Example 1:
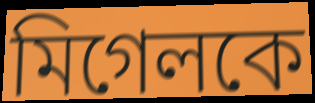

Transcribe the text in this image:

মিগেলকে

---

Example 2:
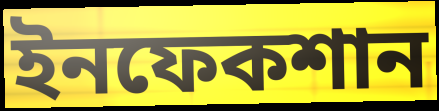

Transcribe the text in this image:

ইনফেকশান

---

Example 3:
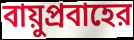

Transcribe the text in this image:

বায়ুপ্রবাহের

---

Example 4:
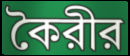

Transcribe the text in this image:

কৈরীর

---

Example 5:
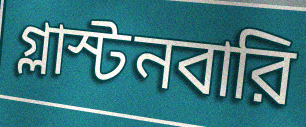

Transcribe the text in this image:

গ্লাস্টনবারি